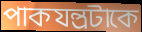
পাকযন্ত্রটাকে